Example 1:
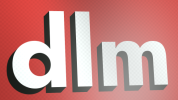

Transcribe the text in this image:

dlm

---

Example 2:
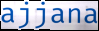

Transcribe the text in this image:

ajjana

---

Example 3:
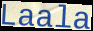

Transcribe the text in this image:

Laala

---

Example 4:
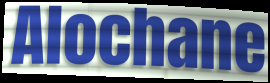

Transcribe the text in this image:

Alochane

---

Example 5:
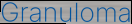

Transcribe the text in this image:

Granuloma